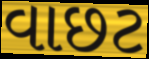
વાછટ